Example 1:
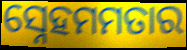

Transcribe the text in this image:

ସ୍ନେହମମତାର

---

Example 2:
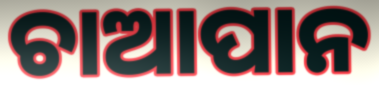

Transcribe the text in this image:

ଚାଆପାନ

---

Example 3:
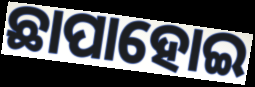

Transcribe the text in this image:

ଛାପାହୋଇ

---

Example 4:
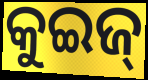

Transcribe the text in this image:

କୁଇଜ୍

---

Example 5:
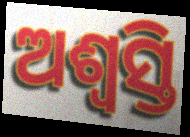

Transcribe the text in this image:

ଅଶ୍ୱସ୍ତି